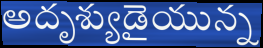
అదృశ్యుడైయున్న